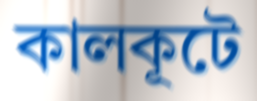
কালকূটে